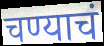
चण्याचं